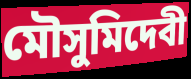
মৌসুমিদেবী